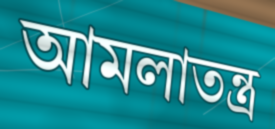
আমলাতন্ত্র